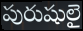
పురుషులై